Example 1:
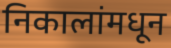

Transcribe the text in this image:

निकालांमधून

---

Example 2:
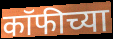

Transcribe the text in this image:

कॉफीच्या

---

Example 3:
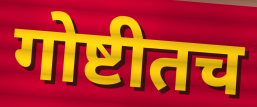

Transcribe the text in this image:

गोष्टीतच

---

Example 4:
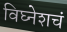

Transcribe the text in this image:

विघ्नेशचं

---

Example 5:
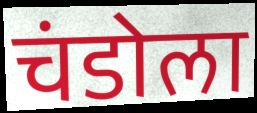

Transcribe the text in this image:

चंडोला